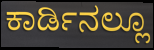
ಕಾರ್ಡಿನಲ್ಲೂ